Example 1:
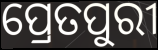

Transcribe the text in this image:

ପ୍ରେତପୁରୀ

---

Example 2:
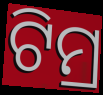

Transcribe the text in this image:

ଟିମ୍ର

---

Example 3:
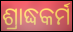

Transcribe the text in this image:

ଶ୍ରାଦ୍ଧକର୍ମ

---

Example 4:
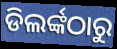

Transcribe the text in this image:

ଡିଲର୍ଙ୍କଠାରୁ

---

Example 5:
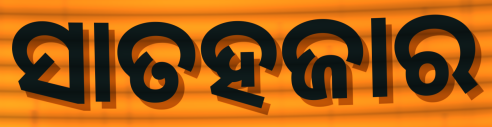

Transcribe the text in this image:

ସାତହଜାର